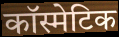
कॉस्मेटिक